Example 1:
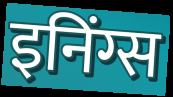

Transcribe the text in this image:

इनिंग्स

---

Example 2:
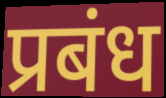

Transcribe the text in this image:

प्रबंध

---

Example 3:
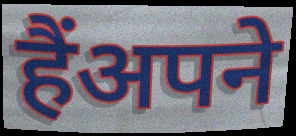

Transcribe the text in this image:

हैंअपने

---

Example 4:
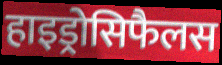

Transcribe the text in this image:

हाइड्रोसिफैलस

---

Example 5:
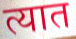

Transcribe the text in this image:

त्यात